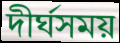
দীর্ঘসময়